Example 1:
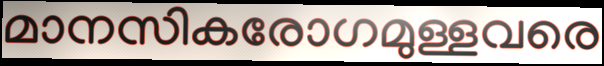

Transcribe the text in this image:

മാനസികരോഗമുള്ളവരെ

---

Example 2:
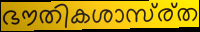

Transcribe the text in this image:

ഭൗതികശാസ്ര്ത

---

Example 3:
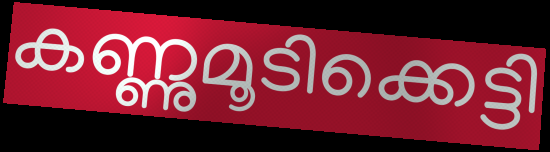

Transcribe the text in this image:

കണ്ണുമൂടിക്കെട്ടി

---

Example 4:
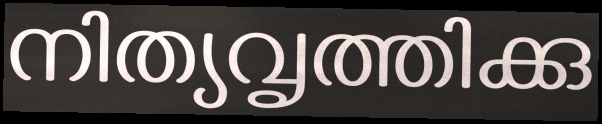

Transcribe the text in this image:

നിത്യവൃത്തിക്കു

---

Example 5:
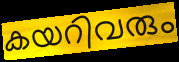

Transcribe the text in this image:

കയറിവരും